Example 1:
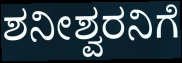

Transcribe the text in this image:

ಶನೀಶ್ವರನಿಗೆ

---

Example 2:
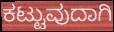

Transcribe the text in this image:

ಕಟ್ಟುವುದಾಗಿ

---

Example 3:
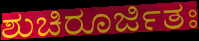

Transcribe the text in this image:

ಶುಚಿರೂರ್ಜಿತಃ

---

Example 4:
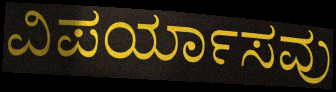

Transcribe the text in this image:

ವಿಪರ್ಯಾಸವು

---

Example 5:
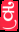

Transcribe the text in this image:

ಕ್ರೆ